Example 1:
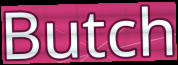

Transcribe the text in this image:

Butch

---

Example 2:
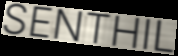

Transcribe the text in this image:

SENTHIL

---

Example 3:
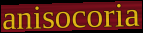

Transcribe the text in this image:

anisocoria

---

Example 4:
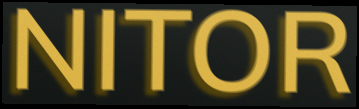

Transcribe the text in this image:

NITOR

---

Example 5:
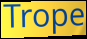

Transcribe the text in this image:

Trope